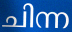
ചിന്ന